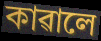
কাৱালে